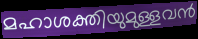
മഹാശക്തിയുമുള്ളവൻ